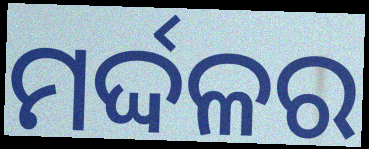
ମର୍ଦ୍ଦଳର